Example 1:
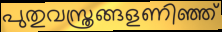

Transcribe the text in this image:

പുതുവസ്ത്രങ്ങളണിഞ്ഞ്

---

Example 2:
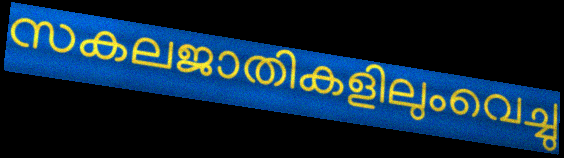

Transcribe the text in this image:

സകലജാതികളിലുംവെച്ചു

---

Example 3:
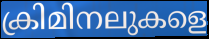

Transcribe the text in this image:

ക്രിമിനലുകളെ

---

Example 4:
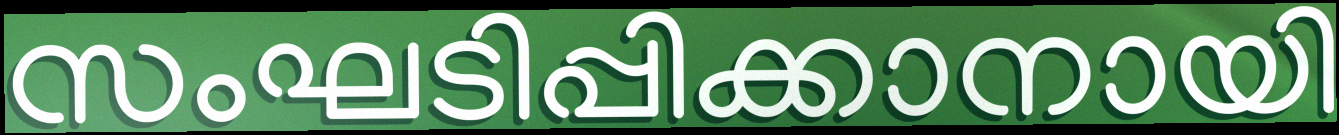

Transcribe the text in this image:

സംഘടിപ്പിക്കാനായി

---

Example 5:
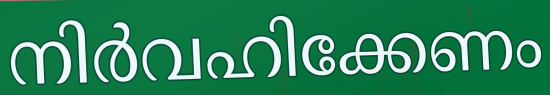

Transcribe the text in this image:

നിർവഹിക്കേണം